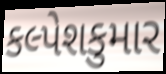
કલ્પેશકુમાર